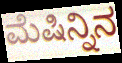
ಮೆಷಿನ್ನಿನ